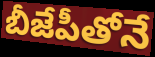
బీజేపీతోనే